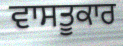
ਵਾਸਤੂਕਾਰ